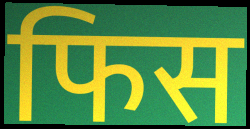
फिस